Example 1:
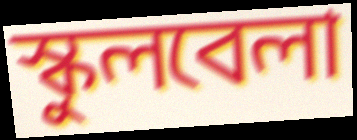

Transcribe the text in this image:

স্কুলবেলা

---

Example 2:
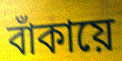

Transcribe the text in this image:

বাঁকায়ে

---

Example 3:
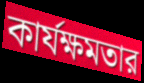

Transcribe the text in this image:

কার্যক্ষমতার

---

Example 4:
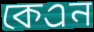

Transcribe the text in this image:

কেএন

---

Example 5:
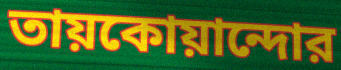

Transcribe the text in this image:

তায়কোয়ান্দোর